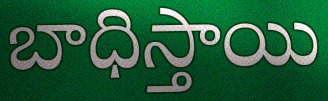
బాధిస్తాయి